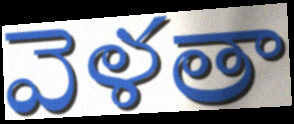
వెళతా